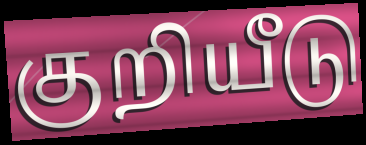
குறியீடு